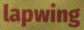
lapwing